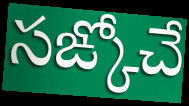
సఙ్కోచే